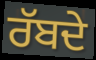
ਰੱਬਦੇ